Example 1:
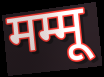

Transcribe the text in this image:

मम्मू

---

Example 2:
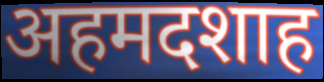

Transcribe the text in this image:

अहमदशाह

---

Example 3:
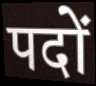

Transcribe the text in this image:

पदों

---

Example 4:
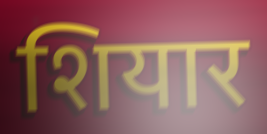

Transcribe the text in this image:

शियार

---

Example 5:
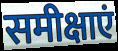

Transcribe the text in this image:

समीक्षाएं